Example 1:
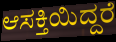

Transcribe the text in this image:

ಆಸಕ್ತಿಯಿದ್ದರೆ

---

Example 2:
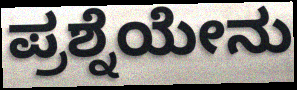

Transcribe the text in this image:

ಪ್ರಶ್ನೆಯೇನು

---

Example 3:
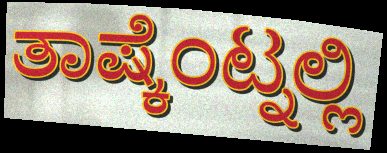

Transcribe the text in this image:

ತಾಷ್ಕೆಂಟ್ನಲ್ಲಿ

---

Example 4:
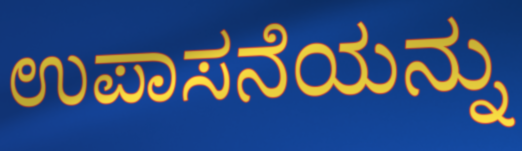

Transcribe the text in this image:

ಉಪಾಸನೆಯನ್ನು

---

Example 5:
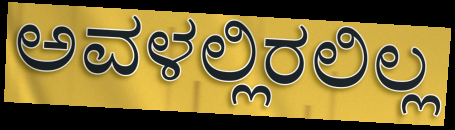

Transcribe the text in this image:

ಅವಳಲ್ಲಿರಲಿಲ್ಲ